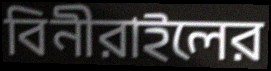
বিনীরাইলের